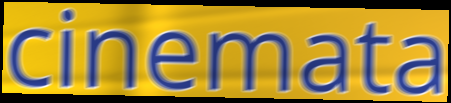
cinemata